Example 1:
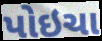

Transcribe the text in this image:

પોઇચા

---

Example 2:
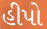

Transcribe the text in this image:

હીપો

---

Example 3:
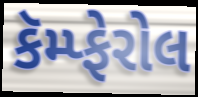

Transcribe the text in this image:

કૅમ્પ્ફેરોલ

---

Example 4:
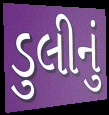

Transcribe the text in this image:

ડુલીનું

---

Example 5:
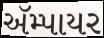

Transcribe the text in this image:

ઍમ્પાયર